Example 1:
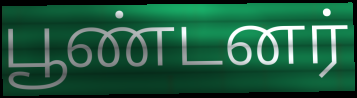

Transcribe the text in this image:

பூண்டனர்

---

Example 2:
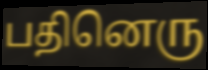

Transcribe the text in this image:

பதினெரு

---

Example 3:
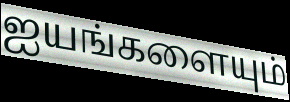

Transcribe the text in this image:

ஐயங்களையும்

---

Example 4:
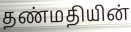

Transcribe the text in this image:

தண்மதியின்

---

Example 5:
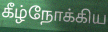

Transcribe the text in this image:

கீழ்நோக்கிய